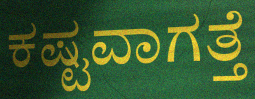
ಕಷ್ಟವಾಗತ್ತೆ